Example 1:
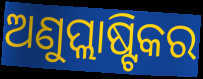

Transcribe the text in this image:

ଅଣୁପ୍ଲାଷ୍ଟିକର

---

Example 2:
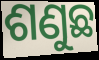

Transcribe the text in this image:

ଶଣୁଛ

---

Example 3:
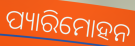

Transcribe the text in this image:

ପ୍ୟାରିମୋହନ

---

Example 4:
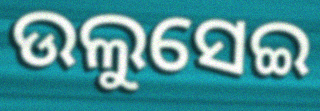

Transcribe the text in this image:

ଉଲୁସେଇ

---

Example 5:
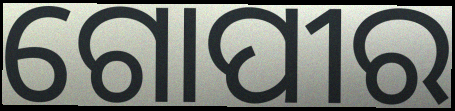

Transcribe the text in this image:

ଗୋପୀର